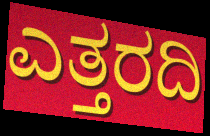
ಎತ್ತರದಿ